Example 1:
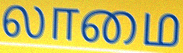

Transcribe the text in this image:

லாமை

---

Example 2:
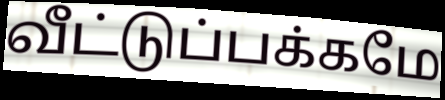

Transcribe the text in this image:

வீட்டுப்பக்கமே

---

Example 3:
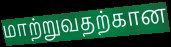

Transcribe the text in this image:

மாற்றுவதற்கான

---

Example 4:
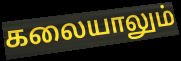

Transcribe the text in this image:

கலையாலும்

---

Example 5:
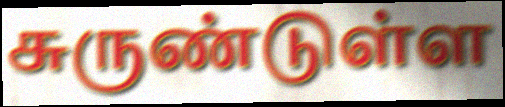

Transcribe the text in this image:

சுருண்டுள்ள